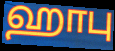
ஹாபு